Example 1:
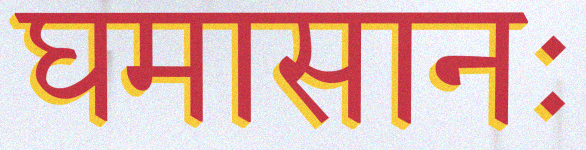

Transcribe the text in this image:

घमासानः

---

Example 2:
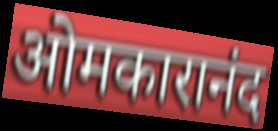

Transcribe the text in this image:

ओमकारानंद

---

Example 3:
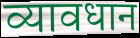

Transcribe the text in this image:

व्यावधान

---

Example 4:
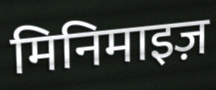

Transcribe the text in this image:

मिनिमाइज़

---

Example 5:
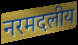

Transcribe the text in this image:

नरमदलीय